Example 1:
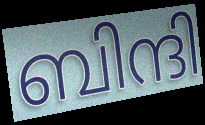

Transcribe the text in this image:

ബിന്ദി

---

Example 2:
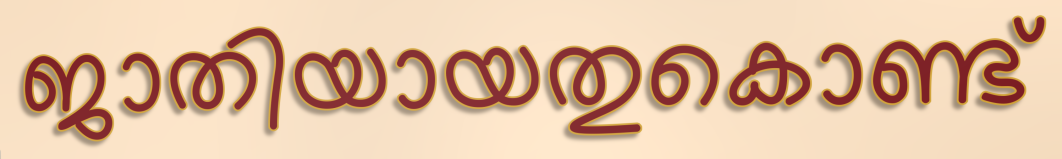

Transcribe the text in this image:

ജാതിയായതുകൊണ്ട്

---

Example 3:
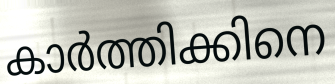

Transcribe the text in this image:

കാർത്തിക്കിനെ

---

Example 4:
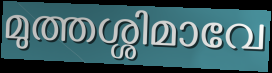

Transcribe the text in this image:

മുത്തശ്ശിമാവേ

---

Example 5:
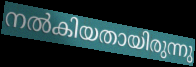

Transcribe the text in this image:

നൽകിയതായിരുന്നു